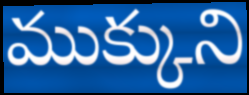
ముక్కుని